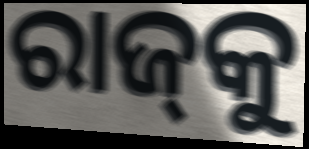
ରାଜ୍‍କୁ